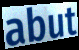
abut